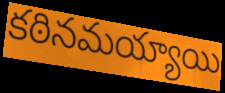
కఠినమయ్యాయి